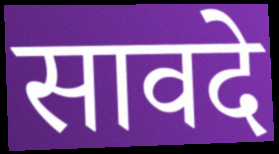
सावदे